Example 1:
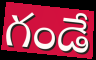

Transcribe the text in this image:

గండే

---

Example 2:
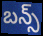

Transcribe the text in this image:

బన్స్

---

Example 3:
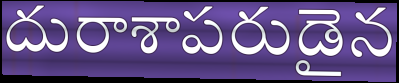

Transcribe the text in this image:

దురాశాపరుడైన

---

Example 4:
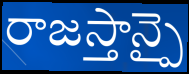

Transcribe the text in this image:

రాజస్తాన్పై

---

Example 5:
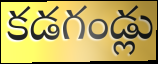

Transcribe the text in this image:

కడగండ్లు